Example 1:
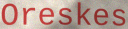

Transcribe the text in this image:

Oreskes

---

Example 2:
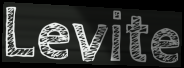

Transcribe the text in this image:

Levite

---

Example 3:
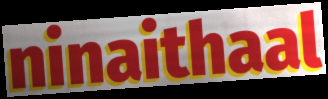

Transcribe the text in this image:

ninaithaal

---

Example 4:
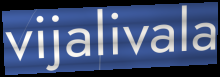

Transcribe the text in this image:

vijalivala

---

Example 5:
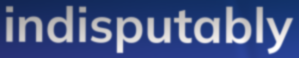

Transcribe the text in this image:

indisputably